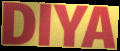
DIYA